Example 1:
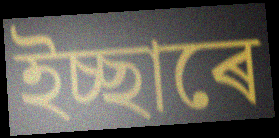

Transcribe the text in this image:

ইচ্ছাৰে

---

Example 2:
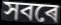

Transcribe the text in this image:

সবৰে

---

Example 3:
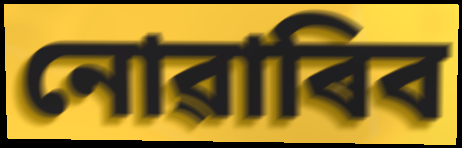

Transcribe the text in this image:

নোৱাৰিব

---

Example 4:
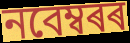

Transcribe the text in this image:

নবেম্বৰৰ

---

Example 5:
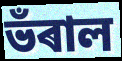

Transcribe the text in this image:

ভঁৰাল